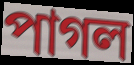
পাগল